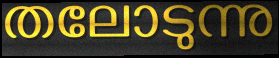
തലോടുന്നു